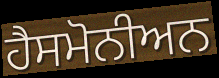
ਹੈਸਮੋਨੀਅਨ